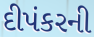
દીપંકરની